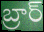
బ్రార్